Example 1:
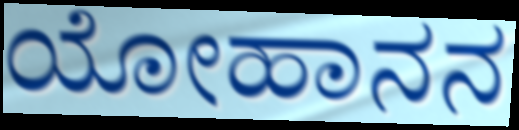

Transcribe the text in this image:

ಯೋಹಾನನ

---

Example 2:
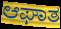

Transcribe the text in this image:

ಆಘಾತ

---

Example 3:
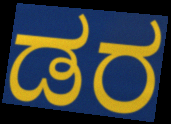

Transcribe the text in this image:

ಡರ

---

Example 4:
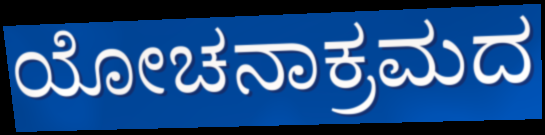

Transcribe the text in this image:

ಯೋಚನಾಕ್ರಮದ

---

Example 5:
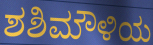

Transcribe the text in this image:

ಶಶಿಮೌಳಿಯ